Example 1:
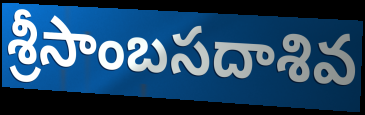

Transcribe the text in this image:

శ్రీసాంబసదాశివ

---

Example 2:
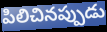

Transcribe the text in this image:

పిలిచినప్పుడు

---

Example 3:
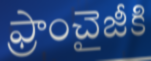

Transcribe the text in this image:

ఫ్రాంచైజీకి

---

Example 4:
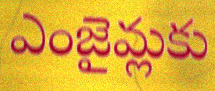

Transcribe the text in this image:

ఎంజైమ్లకు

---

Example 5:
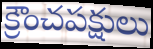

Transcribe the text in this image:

క్రౌంచపక్షులు